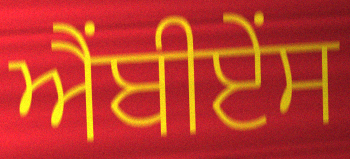
ਐਂਬੀਏਂਸ